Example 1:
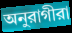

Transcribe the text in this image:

অনুরাগীরা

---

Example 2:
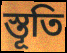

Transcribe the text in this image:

স্তূতি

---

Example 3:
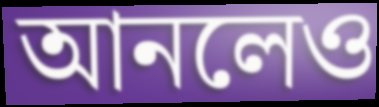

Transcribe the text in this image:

আনলেও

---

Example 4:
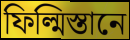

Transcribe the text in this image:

ফিল্মিস্তানে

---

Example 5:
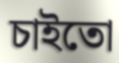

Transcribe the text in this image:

চাইতো